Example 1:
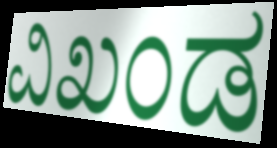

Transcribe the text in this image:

ವಿಖಂಡ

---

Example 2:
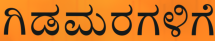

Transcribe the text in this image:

ಗಿಡಮರಗಳಿಗೆ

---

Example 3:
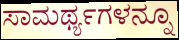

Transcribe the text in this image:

ಸಾಮರ್ಥ್ಯಗಳನ್ನೂ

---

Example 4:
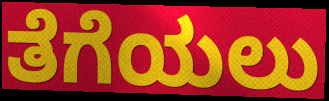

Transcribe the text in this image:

ತೆಗೆಯಲು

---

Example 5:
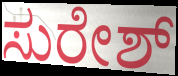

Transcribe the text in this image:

ಸುರೇಶ್